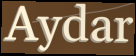
Aydar